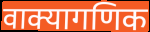
वाक्यागणिक